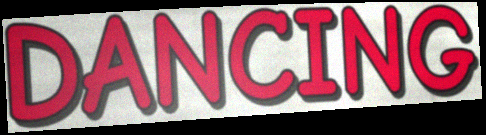
DANCING